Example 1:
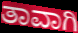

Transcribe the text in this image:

ತಾವಾಗಿ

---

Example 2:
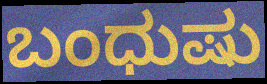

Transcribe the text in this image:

ಬಂಧುಷು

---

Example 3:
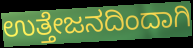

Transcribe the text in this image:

ಉತ್ತೇಜನದಿಂದಾಗಿ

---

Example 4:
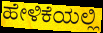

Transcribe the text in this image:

ಹೇಳಿಕೆಯಲ್ಲಿ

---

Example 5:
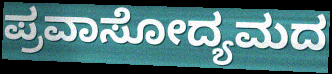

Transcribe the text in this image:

ಪ್ರವಾಸೋದ್ಯಮದ